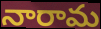
నారామ